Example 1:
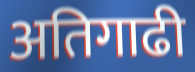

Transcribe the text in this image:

अतिगाढी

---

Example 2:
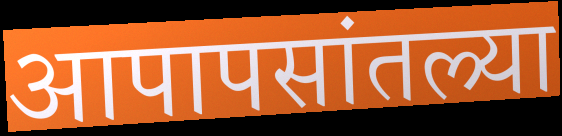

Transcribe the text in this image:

आपापसांतल्या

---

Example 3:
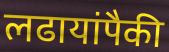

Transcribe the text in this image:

लढायांपैकी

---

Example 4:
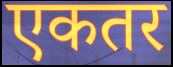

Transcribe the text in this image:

एकतर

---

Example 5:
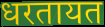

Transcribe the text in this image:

धरतायत